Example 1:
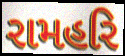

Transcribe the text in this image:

રામહરિ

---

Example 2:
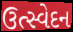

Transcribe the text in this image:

ઉત્સ્વેદન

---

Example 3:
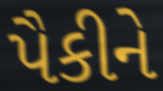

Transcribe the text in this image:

પૈકીને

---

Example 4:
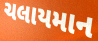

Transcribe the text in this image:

ચલાયમાન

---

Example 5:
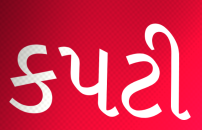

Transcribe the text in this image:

કપટી